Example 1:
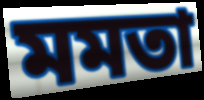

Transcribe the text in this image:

মমতা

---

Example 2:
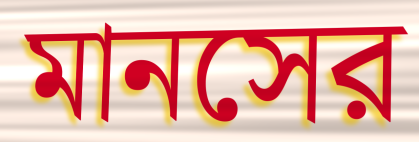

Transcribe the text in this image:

মানসের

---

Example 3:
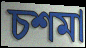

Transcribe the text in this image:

চশমা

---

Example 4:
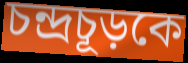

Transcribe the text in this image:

চন্দ্রচূড়কে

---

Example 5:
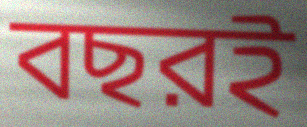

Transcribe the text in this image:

বছরই